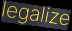
legalize